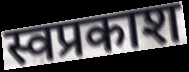
स्वप्रकाश